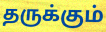
தருக்கும்